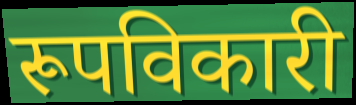
रूपविकारी